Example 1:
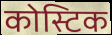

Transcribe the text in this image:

कोस्टिक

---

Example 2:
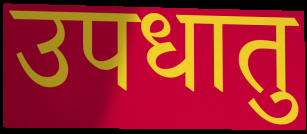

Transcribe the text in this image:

उपधातु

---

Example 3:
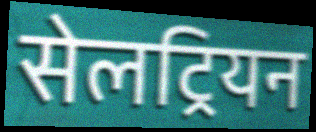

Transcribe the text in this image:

सेलट्रियन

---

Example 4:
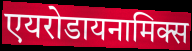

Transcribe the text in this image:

एयरोडायनामिक्स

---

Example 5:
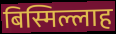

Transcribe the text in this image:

बिस्मिल्लाह